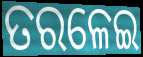
ତରଳେଇ